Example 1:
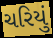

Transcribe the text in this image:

ચરિયું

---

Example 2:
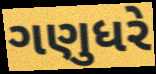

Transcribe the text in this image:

ગણુધરે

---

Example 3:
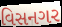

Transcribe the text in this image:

વિસનગર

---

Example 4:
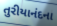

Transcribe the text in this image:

તુરીયાનંદના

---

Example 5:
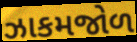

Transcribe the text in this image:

ઝાકમજોળ